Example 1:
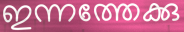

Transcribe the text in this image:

ഇന്നത്തേക്കു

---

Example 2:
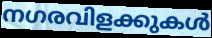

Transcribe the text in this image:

നഗരവിളക്കുകൾ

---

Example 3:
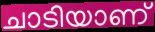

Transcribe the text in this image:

ചാടിയാണ്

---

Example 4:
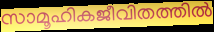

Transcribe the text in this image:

സാമൂഹികജീവിതത്തിൽ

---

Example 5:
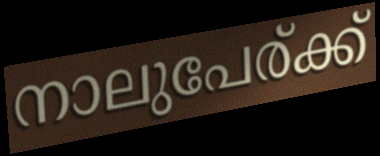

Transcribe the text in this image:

നാലുപേര്ക്ക്